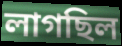
লাগছিল